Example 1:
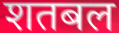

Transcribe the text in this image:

शतबल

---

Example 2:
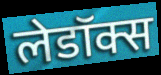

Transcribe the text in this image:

लेडॉक्स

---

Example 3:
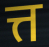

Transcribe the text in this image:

त्त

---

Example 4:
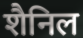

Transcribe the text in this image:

शैनिल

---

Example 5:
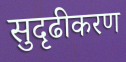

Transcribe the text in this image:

सुदृढीकरण